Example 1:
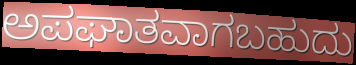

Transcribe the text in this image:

ಅಪಘಾತವಾಗಬಹುದು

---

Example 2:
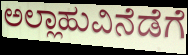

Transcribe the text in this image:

ಅಲ್ಲಾಹುವಿನೆಡೆಗೆ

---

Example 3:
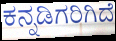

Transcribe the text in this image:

ಕನ್ನಡಿಗರಿಗಿದೆ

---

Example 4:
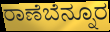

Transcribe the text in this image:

ರಾಣೆಬೆನ್ನೂರ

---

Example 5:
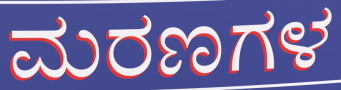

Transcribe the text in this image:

ಮರಣಗಳ